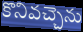
కొనివచ్చెను